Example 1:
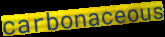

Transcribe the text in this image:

carbonaceous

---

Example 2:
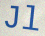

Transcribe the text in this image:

Jl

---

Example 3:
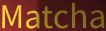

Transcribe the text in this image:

Matcha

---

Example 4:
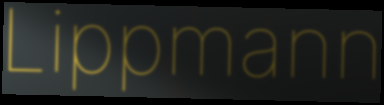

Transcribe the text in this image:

Lippmann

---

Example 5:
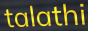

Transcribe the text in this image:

talathi